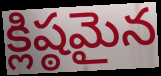
క్లిష్ఠమైన